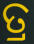
ତ୍ର